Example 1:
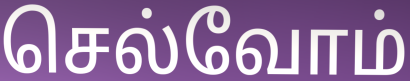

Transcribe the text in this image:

செல்வோம்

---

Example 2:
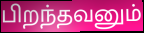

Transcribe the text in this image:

பிறந்தவனும்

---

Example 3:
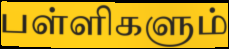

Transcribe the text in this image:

பள்ளிகளும்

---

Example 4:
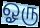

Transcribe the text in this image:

ஓரு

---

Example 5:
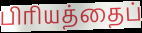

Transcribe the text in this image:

பிரியத்தைப்